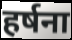
हर्षना